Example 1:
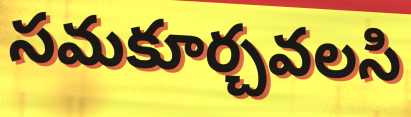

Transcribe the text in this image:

సమకూర్చవలసి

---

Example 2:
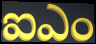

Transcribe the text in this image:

ఐఎం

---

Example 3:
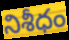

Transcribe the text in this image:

నిశీధం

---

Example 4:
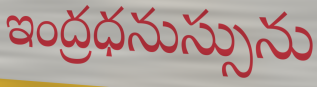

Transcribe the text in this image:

ఇంద్రధనుస్సును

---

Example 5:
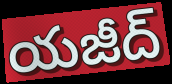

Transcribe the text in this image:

యజీద్